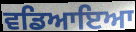
ਵਡਿਆਇਆ